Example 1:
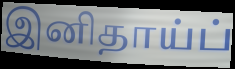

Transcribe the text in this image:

இனிதாய்ப்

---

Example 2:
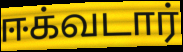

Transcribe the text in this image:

ஈக்வடார்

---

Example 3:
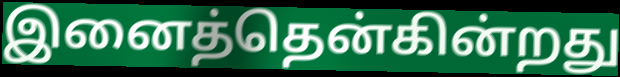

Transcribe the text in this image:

இனைத்தென்கின்றது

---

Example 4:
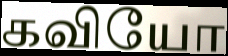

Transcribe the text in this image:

கவியோ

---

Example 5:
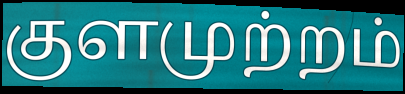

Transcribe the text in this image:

குளமுற்றம்